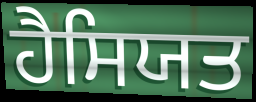
ਹੈਸਿਯਤ